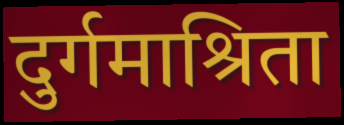
दुर्गमाश्रिता